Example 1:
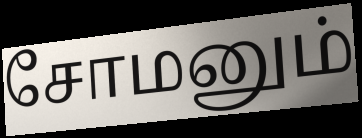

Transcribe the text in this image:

சோமனும்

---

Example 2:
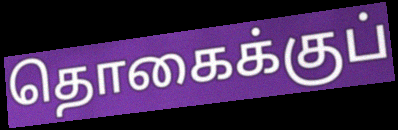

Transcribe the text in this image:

தொகைக்குப்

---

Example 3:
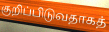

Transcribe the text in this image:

குறிப்பிடுவதாகத்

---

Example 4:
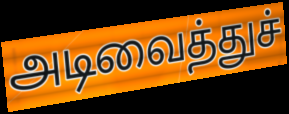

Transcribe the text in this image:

அடிவைத்துச்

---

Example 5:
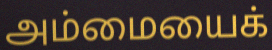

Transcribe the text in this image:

அம்மையைக்